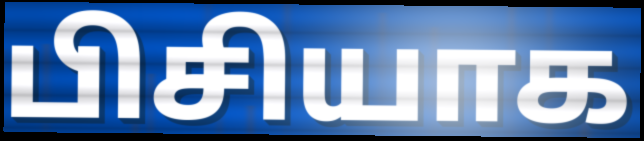
பிசியாக